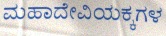
ಮಹಾದೇವಿಯಕ್ಕಗಳ